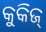
କୁକିଜ୍